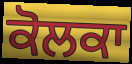
ਕੋਲਕਾ